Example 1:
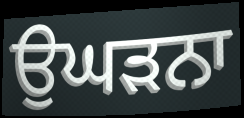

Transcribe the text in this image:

ਉਘੜਨਾ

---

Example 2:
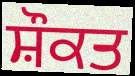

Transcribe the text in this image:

ਸ਼ੌਕਤ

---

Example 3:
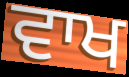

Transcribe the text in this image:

ਵਾਖ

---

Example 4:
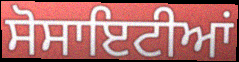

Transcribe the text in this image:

ਸੋਸਾਇਟੀਆਂ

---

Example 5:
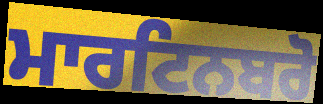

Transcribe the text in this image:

ਮਾਰਟਿਨਬਰੋ